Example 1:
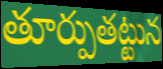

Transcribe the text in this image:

తూర్పుతట్టున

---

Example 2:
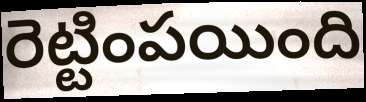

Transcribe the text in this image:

రెట్టింపయింది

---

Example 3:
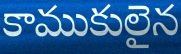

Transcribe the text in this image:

కాముకులైన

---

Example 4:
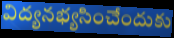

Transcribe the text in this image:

విద్యనభ్యసించేందుకు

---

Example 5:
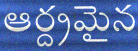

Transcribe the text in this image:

ఆర్ద్రమైన